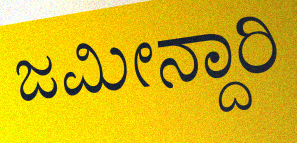
ಜಮೀನ್ದಾರಿ